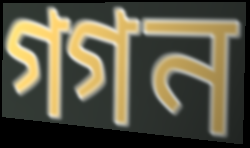
গগন